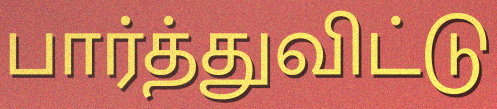
பார்த்துவிட்டு